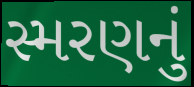
સ્મરણનું